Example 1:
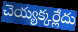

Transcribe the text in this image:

చెయ్యక్కర్లేదు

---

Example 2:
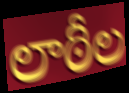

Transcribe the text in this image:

లాఠీల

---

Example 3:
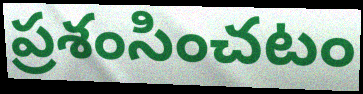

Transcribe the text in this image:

ప్రశంసించటం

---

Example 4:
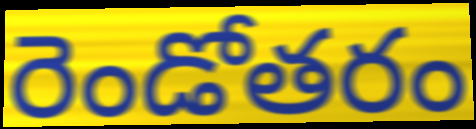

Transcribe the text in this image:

రెండోతరం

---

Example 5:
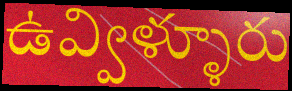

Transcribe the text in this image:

ఉవ్విళ్ళూరు